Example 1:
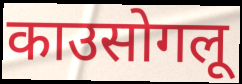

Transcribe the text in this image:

काउसोगलू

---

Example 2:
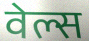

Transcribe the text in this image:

वेल्स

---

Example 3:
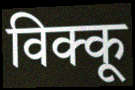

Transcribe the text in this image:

विक्कू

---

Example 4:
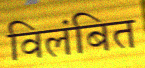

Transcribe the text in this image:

विलंबित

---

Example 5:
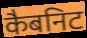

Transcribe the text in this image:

कैबनिट